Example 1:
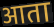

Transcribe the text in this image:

आता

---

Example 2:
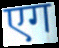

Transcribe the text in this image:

एग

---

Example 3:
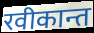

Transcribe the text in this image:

रवीकान्त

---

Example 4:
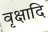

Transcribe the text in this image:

वृक्षादि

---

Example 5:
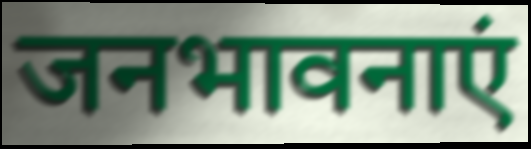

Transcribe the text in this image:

जनभावनाएं